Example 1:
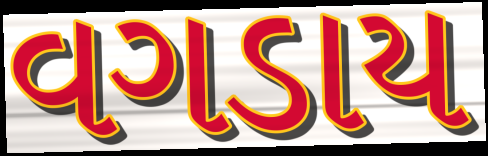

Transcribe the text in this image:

વગડાય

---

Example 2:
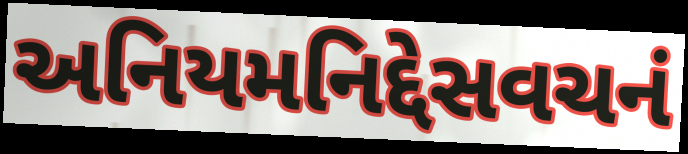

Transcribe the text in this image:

અનિયમનિદ્દેસવચનં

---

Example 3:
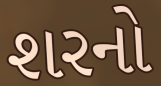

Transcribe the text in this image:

શરનો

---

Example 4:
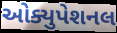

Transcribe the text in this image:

ઓક્યુપેશનલ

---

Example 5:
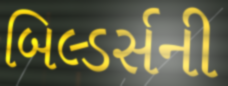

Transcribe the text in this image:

બિલ્ડર્સની